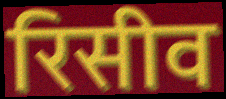
रिसीव